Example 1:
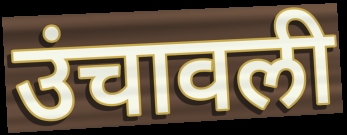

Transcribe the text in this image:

उंचावली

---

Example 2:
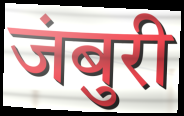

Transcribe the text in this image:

जंबुरी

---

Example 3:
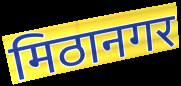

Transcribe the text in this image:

मिठानगर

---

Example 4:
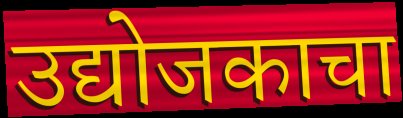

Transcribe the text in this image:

उद्योजकाचा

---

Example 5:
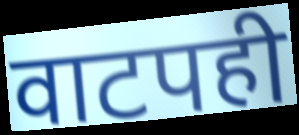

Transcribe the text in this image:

वाटपही